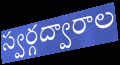
స్వర్గద్వారాల